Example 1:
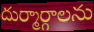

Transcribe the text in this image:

దుర్మార్గాలను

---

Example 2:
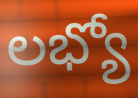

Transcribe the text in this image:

లభ్యో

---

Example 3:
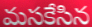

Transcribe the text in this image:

మసకేసిన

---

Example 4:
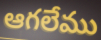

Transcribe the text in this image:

ఆగలేము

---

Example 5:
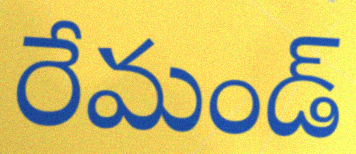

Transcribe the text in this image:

రేమండ్